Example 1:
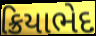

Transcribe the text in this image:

ક્રિયાભેદ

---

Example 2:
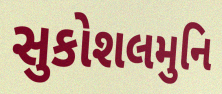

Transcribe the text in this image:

સુકોશલમુનિ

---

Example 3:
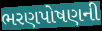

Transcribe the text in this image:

ભરણપોષણની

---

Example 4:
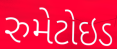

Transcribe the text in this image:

રુમેટોઇડ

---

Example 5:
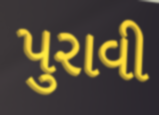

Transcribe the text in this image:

પુરાવી